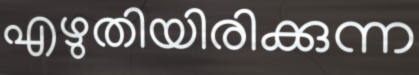
എഴുതിയിരിക്കുന്ന